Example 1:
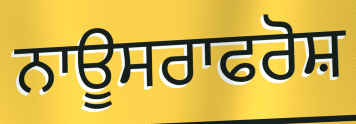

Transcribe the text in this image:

ਨਾਊਸਰਾਫਰੋਸ਼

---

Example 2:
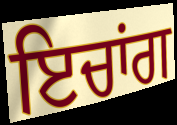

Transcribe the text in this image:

ਇਚਾਂਗ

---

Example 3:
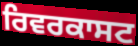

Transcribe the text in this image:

ਰਿਵਰਕਾਸਟ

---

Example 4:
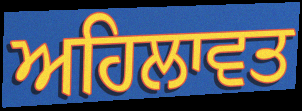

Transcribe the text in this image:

ਅਹਿਲਾਵਤ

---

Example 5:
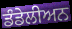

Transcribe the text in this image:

ਡੰਡੇਲੀਅਨ